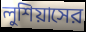
লুশিয়াসের